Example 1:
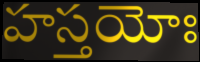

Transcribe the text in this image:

హస్తయోః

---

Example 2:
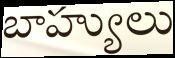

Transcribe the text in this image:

బాహ్యులు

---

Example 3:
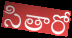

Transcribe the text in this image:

సితారో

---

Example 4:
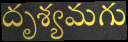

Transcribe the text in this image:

దృశ్యమగు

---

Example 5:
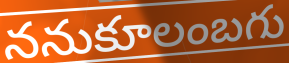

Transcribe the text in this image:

ననుకూలంబగు